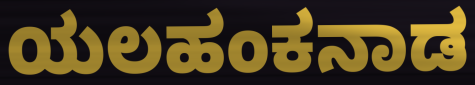
ಯಲಹಂಕನಾಡ